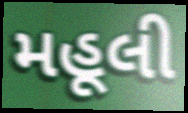
મહૂલી